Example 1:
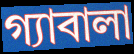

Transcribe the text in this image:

গ্যাবালা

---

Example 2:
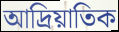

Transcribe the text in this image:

আদ্রিয়াতিক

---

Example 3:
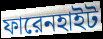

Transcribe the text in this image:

ফারেনহাইট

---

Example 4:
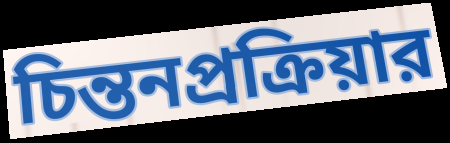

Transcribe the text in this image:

চিন্তনপ্রক্রিয়ার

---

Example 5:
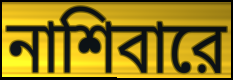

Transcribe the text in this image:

নাশিবারে